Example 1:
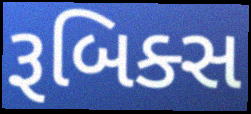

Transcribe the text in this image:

રૂબિક્સ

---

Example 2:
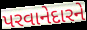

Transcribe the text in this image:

પરવાનેદારને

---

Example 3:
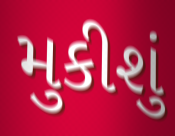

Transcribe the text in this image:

મુકીશું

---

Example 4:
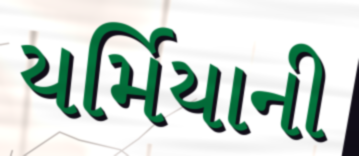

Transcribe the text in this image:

યર્મિયાની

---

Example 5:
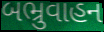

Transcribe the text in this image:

બભ્રુવાહન